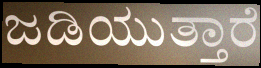
ಜಡಿಯುತ್ತಾರೆ